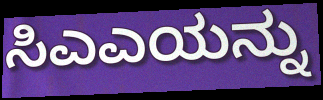
ಸಿಎಎಯನ್ನು